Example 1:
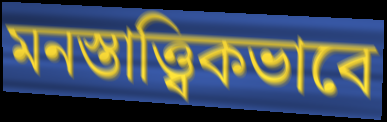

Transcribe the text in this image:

মনস্তাত্ত্বিকভাবে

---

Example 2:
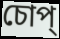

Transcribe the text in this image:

চোপ্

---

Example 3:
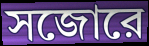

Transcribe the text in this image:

সজোরে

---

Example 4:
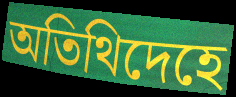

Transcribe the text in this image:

অতিথিদেহে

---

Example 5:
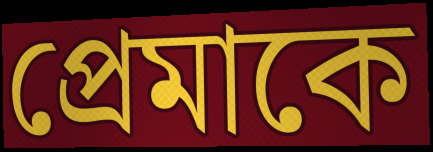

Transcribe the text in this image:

প্রেমাকে